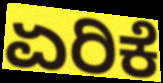
ಏರಿಕೆ